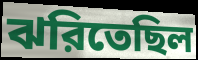
ঝরিতেছিল